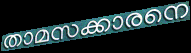
താമസക്കാരനെ